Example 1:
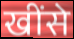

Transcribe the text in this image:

खींसे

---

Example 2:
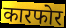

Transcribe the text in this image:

कारफोर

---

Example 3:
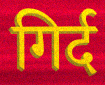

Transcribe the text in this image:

गिर्द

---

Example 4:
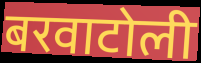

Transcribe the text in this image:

बरवाटोली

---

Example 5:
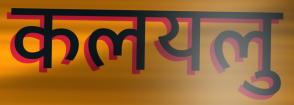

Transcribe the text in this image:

कलयलु